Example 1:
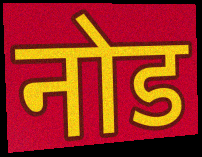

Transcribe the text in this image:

नोड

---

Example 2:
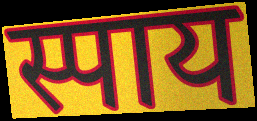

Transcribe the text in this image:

स्पाय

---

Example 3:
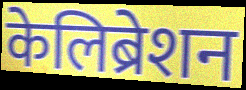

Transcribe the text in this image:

केलिब्रेशन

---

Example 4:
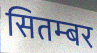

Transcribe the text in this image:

सितम्बर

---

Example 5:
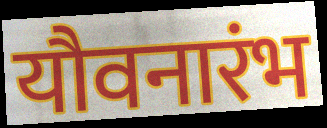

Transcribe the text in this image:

यौवनारंभ